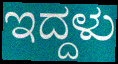
ಇದ್ದಳು